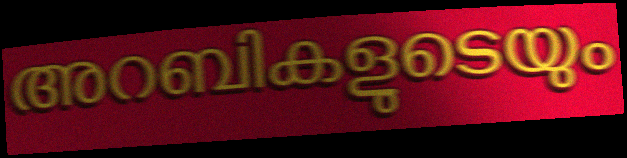
അറബികളുടെയും